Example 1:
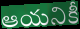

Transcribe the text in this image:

ఆయనికీ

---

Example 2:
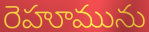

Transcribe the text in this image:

రెహూమును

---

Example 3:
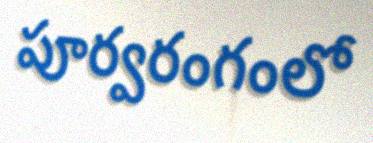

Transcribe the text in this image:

పూర్వరంగంలో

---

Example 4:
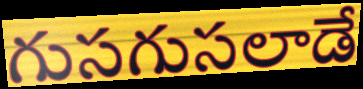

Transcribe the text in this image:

గుసగుసలాడే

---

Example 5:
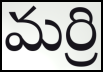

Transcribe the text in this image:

మర్రి